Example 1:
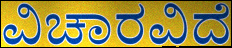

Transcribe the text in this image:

ವಿಚಾರವಿದೆ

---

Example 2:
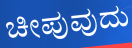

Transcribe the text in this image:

ಚೀಪುವುದು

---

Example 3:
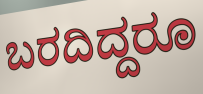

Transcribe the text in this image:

ಬರದಿದ್ದರೂ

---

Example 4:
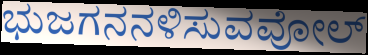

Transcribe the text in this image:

ಭುಜಗನನಳಿಸುವವೋಲ್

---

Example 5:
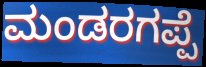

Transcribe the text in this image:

ಮಂಡರಗಪ್ಪೆ